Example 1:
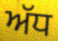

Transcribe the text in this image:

ਅੱਧ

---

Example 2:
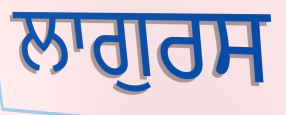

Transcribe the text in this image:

ਲਾਗੁਰਸ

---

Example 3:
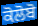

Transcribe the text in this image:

ਕੋਲੋਬੋ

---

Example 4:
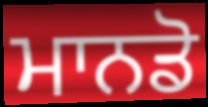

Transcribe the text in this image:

ਮਾਨਡੋ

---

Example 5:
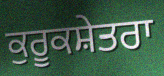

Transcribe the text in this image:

ਕੁਰੂਕਸ਼ੇਤਰਾ